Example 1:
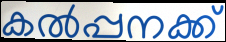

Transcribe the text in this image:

കൽപ്പനക്ക്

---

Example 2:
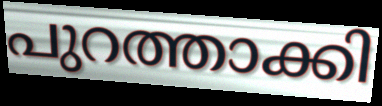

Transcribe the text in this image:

പുറത്താക്കി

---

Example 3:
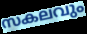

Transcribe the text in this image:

സകലവും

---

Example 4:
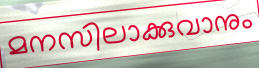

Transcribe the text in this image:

മനസിലാക്കുവാനും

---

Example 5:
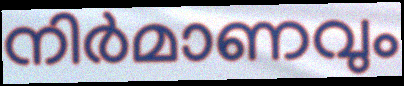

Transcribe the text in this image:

നിർമാണവും